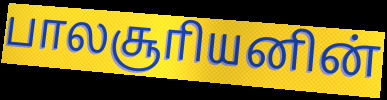
பாலசூரியனின்